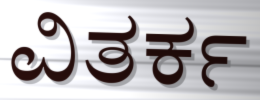
ವಿತರ್ಕ